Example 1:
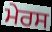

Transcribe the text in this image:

ਮੇਰਸ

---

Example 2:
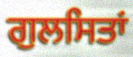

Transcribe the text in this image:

ਗੁਲਸਿਤਾਂ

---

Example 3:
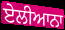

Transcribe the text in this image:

ਏਲੀਆਨਾ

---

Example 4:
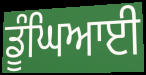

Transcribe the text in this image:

ਡੂੰਘਿਆਈ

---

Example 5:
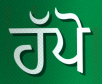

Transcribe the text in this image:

ਹੱਪੋ